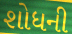
શોધની